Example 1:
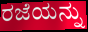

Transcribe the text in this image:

ರಜೆಯನ್ನು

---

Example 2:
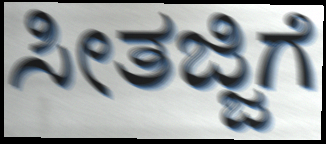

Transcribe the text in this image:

ಸೀತಜ್ಜಿಗೆ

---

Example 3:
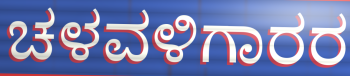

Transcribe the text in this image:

ಚಳವಳಿಗಾರರ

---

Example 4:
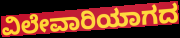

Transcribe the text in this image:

ವಿಲೇವಾರಿಯಾಗದ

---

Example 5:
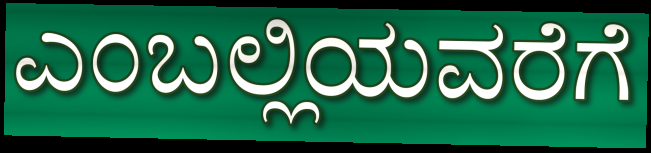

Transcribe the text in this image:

ಎಂಬಲ್ಲಿಯವರೆಗೆ